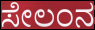
ಸೇಲಂನ